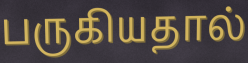
பருகியதால்